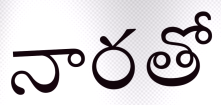
నారతో